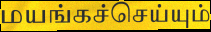
மயங்கச்செய்யும்